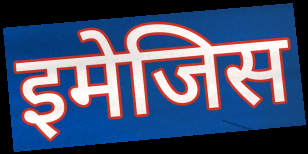
इमेजिस